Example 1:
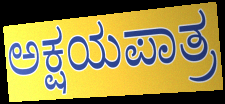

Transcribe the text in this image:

ಅಕ್ಷಯಪಾತ್ರ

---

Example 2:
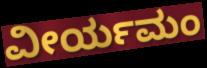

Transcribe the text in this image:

ವೀರ್ಯಮಂ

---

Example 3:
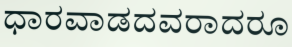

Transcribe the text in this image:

ಧಾರವಾಡದವರಾದರೂ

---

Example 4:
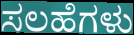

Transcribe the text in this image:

ಸಲಹೆಗಳು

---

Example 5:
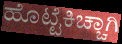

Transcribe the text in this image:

ಹೊಟ್ಟೆಕಿಚ್ಚಾಗಿ